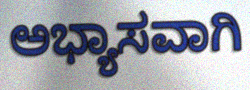
ಅಭ್ಯಾಸವಾಗಿ